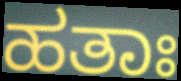
ಹತಾಃ